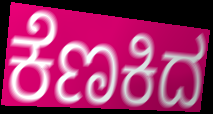
ಕೆಣಕಿದ